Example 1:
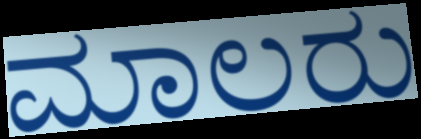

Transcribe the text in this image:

ಮಾಲರು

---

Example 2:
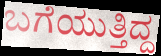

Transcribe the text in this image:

ಬಗೆಯುತ್ತಿದ್ದ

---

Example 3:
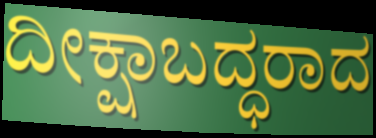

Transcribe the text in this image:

ದೀಕ್ಷಾಬದ್ಧರಾದ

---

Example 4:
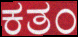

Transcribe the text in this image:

ಕತಂ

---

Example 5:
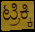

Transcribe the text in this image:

ಟ್ರಿಕ್ಕಿ